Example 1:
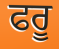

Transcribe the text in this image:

ਫਰੂ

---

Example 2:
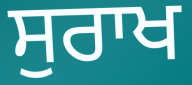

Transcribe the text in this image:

ਸੁਰਾਖ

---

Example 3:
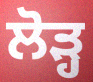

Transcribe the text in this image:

ਲੋੜ੍ਹ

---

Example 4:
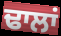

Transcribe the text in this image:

ਢਾਲਾਂ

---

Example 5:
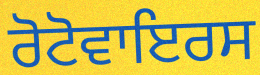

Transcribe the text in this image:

ਰੋਟੋਵਾਇਰਸ